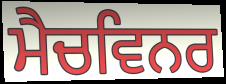
ਮੈਚਵਿਨਰ